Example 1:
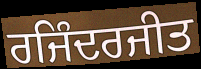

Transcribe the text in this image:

ਰਜਿੰਦਰਜੀਤ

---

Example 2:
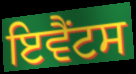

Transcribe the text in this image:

ਇਵੈਂਟਸ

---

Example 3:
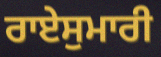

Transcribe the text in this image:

ਰਾਏਸੁਮਾਰੀ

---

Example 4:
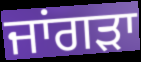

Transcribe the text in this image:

ਜਾਂਗੜਾ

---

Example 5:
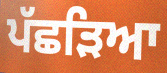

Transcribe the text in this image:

ਪੱਛੜਿਆ